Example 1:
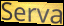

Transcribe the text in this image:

Serva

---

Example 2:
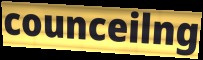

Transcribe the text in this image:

counceilng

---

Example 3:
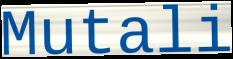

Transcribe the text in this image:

Mutali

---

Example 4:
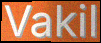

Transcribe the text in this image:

Vakil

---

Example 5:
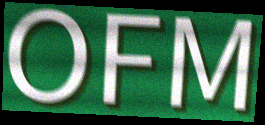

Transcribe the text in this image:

OFM